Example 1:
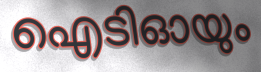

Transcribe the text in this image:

ഐടിഓയും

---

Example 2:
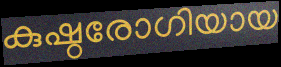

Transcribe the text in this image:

കുഷ്ഠരോഗിയായ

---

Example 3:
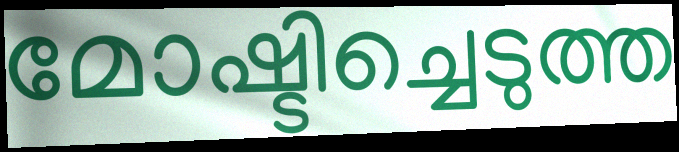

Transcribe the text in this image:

മോഷ്ടിച്ചെടുത്ത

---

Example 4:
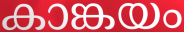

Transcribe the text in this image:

കാങ്കയം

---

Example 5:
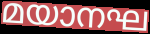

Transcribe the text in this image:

മയാനഘ